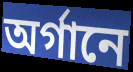
অর্গানে